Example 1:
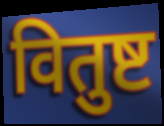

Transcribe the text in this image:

वितुष्ट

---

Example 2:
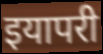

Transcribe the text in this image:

इयापरी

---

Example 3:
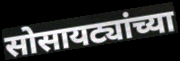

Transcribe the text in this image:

सोसायट्यांच्या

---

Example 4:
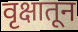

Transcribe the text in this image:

वृक्षातून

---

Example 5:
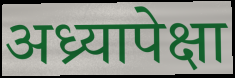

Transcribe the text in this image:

अध्र्यापेक्षा